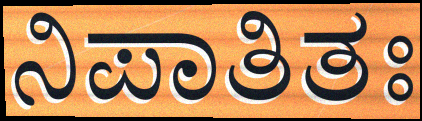
ನಿಪಾತಿತಃ